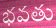
భవతు